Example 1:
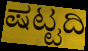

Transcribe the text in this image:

ಷಟ್ಟದಿ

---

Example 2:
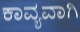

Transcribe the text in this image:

ಕಾವ್ಯವಾಗಿ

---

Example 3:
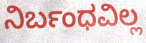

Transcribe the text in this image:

ನಿರ್ಬಂಧವಿಲ್ಲ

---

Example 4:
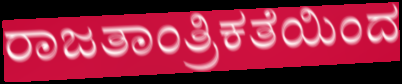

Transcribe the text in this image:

ರಾಜತಾಂತ್ರಿಕತೆಯಿಂದ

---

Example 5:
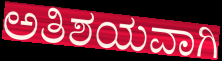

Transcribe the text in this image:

ಅತಿಶಯವಾಗಿ